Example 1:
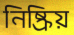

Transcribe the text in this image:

নিষ্ক্রিয়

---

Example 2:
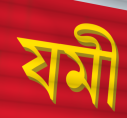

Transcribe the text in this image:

যমী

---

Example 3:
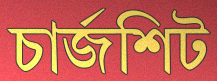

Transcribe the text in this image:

চার্জশিট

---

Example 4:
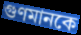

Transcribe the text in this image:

গুণমানকে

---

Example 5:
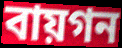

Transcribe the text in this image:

বায়গন